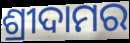
ଶ୍ରୀଦାମର